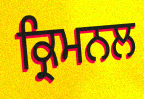
ਕ੍ਰਿਮਨਲ